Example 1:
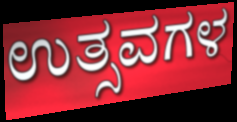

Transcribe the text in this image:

ಉತ್ಸವಗಳ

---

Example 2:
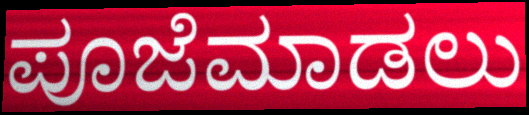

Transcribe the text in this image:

ಪೂಜೆಮಾಡಲು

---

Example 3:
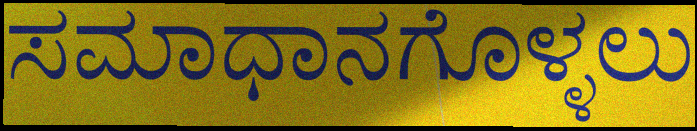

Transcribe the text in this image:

ಸಮಾಧಾನಗೊಳ್ಳಲು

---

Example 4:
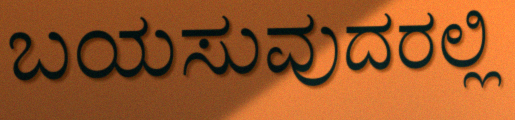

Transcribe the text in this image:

ಬಯಸುವುದರಲ್ಲಿ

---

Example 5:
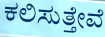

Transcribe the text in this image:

ಕಲಿಸುತ್ತೇವೆ